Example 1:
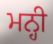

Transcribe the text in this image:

ਮਨ੍ਹੀ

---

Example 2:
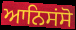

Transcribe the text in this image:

ਆਨਿਸਂਸੋ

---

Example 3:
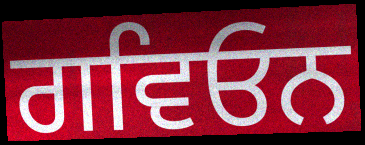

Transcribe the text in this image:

ਗਵਿਓਨ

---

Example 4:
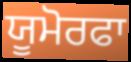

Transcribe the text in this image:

ਯੂਮੋਰਫਾ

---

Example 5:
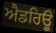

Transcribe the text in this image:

ਐਡਰਿਊ